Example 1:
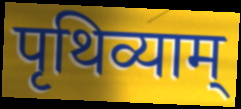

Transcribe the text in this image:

पृथिव्याम्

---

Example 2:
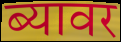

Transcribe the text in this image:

ब्यावर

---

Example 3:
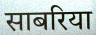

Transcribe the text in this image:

साबरिया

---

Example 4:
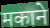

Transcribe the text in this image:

मकाने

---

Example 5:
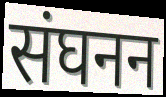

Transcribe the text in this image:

संघनन